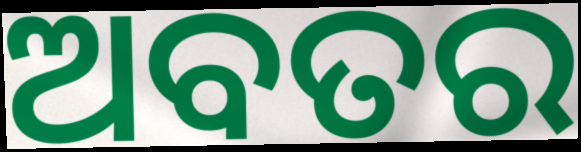
ଅବତର